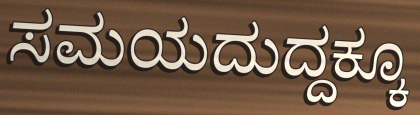
ಸಮಯದುದ್ದಕ್ಕೂ